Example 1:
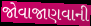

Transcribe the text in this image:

જોવાજાણવાની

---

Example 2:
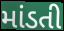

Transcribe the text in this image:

માંડતી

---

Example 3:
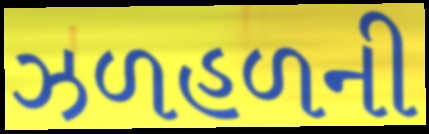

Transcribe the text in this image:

ઝળહળની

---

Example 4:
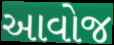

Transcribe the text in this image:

આવોજ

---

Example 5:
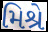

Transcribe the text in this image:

મિશ્રે